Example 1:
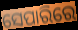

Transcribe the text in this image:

ସେପାରିରେ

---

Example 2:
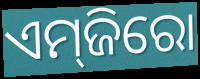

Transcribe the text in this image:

ଏମ୍‌ଜିରୋ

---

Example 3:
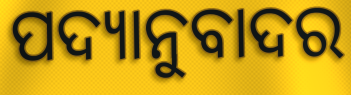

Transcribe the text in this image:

ପଦ୍ୟାନୁବାଦର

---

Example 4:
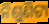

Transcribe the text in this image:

ନିଶୁଣିଟା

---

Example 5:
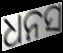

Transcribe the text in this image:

ଧନସ